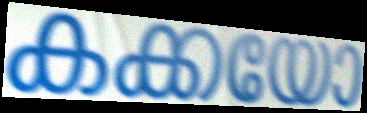
കക്കയോ